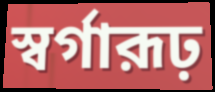
স্বর্গারূঢ়